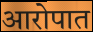
आरोपात